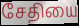
சேதியை